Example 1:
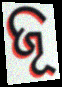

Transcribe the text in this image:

ଜୂ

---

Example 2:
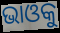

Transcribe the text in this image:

ଭାଓକୁ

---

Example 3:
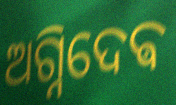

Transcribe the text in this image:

ଅଗ୍ନିଦେଵ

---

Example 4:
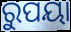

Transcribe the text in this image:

ରୁପୟା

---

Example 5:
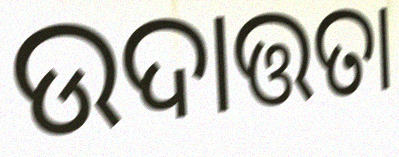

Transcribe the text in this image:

ଉଦାତ୍ତତା